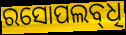
ରସୋପଲବ୍‌ଧି